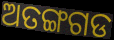
ଅତଙ୍ଗଗଡ